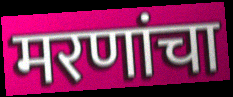
मरणांचा